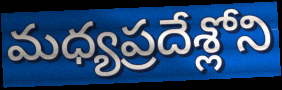
మధ్యప్రదేశ్లోని